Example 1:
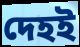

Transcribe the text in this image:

দেহই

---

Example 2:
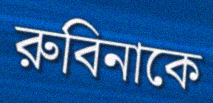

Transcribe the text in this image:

রুবিনাকে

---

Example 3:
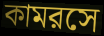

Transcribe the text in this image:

কামরসে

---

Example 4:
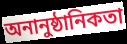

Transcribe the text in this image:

অনানুষ্ঠানিকতা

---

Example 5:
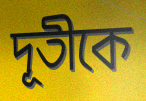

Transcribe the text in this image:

দূতীকে